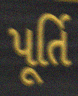
પૂર્તિ